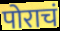
पोराचं